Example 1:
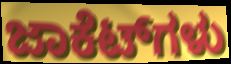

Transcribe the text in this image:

ಜಾಕೆಟ್‌ಗಳು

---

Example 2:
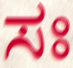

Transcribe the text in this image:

ಸಃ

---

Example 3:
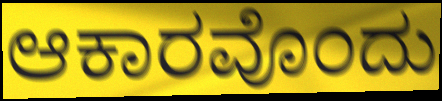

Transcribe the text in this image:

ಆಕಾರವೊಂದು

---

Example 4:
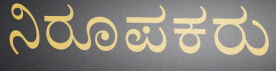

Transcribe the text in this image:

ನಿರೂಪಕರು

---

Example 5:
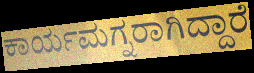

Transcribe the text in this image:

ಕಾರ್ಯಮಗ್ನರಾಗಿದ್ದಾರೆ